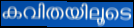
കവിതയിലൂടെ